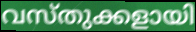
വസ്തുക്കളായി